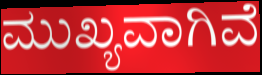
ಮುಖ್ಯವಾಗಿವೆ